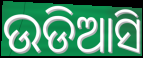
ଉଡିଆସି